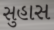
સુહાસ